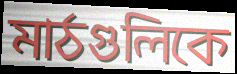
মাঠগুলিকে